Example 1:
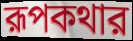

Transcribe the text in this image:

রূপকথার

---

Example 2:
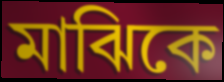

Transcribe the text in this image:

মাঝিকে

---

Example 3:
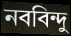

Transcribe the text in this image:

নববিন্দু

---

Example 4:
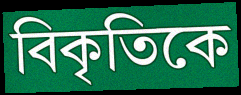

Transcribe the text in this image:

বিকৃতিকে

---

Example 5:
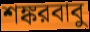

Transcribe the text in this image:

শঙ্করবাবু